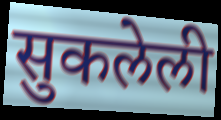
सुकलेली